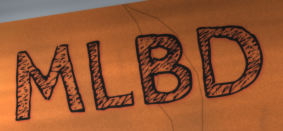
MLBD